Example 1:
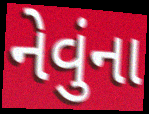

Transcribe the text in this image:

નેવુંના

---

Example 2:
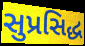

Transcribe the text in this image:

સુપ્રસિદ્ધ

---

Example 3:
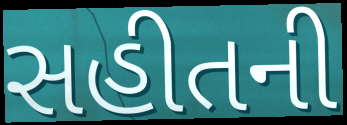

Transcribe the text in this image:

સહીતની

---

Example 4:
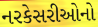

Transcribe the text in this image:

નરકેસરીઓનો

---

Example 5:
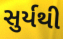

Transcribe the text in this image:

સુર્યથી